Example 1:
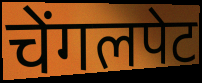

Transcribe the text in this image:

चेंगलपेट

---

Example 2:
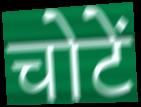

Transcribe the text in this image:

चोटें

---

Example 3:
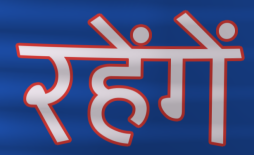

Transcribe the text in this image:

रहेंगें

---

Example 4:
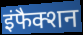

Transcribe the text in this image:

इंफैक्शन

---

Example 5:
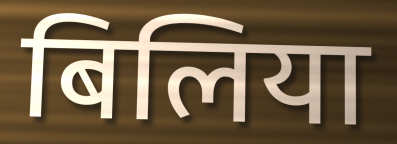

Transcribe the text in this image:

बिलिया